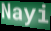
Nayi